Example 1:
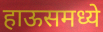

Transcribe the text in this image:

हाऊसमध्ये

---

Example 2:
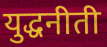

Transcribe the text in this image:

युद्धनीती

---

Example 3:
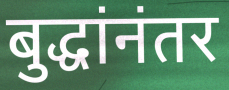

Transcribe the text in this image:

बुद्धांनंतर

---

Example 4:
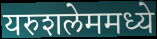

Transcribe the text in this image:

यरुशलेममध्ये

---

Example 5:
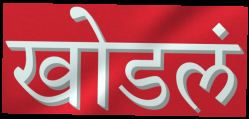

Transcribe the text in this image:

खोडलं